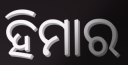
ହିମାର